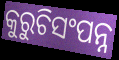
କୁରୁଚିସଂପନ୍ନ